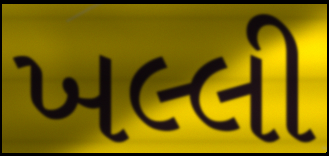
ખલ્લી